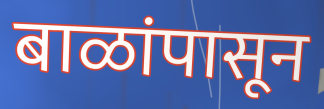
बाळांपासून